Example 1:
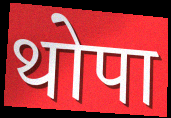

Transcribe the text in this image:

थोपा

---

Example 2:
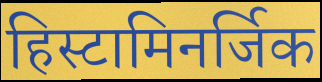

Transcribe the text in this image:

हिस्टामिनर्जिक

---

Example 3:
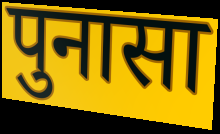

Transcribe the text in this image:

पुनासा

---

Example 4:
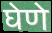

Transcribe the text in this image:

घेणे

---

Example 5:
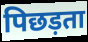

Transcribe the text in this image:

पिछड़ता